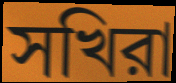
সখিরা